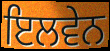
ਇਲਵੇਨ